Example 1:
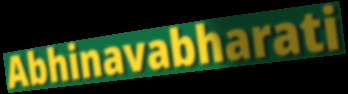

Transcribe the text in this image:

Abhinavabharati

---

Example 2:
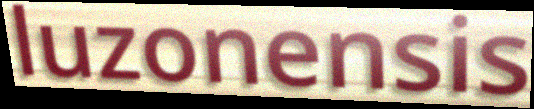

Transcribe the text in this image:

luzonensis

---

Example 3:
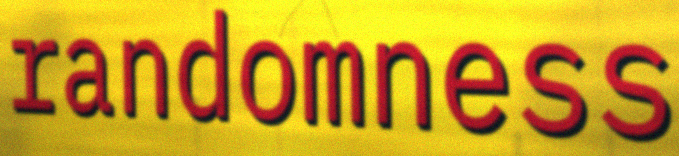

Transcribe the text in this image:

randomness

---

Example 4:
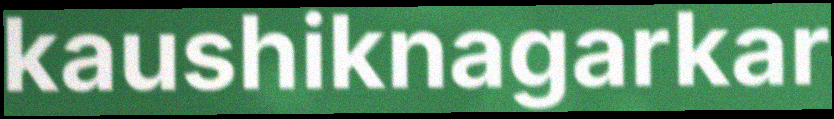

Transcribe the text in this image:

kaushiknagarkar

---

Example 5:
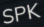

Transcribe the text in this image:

SPK